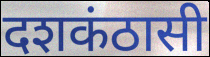
दशकंठासी